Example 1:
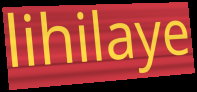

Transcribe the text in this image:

lihilaye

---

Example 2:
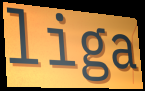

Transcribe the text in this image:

liga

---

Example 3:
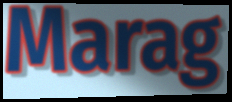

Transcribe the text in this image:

Marag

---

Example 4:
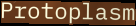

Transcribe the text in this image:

Protoplasm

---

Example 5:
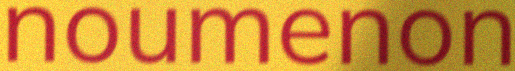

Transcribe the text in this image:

noumenon